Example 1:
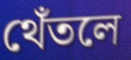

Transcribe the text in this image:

থেঁতলে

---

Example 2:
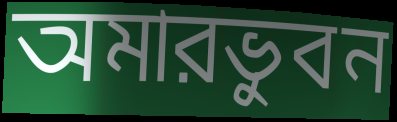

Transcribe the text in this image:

অমারভুবন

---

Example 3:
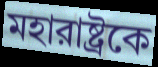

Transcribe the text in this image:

মহারাষ্ট্রকে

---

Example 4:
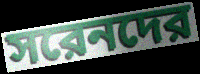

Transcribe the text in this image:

সরেনদের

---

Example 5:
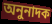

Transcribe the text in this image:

অনুনাদক